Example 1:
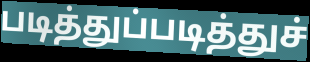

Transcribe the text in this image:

படித்துப்படித்துச்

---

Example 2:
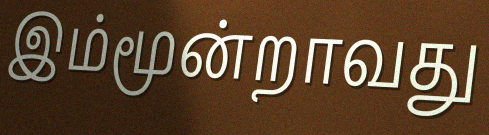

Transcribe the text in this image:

இம்மூன்றாவது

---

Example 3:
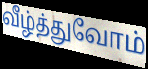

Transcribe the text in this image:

வீழ்த்துவோம்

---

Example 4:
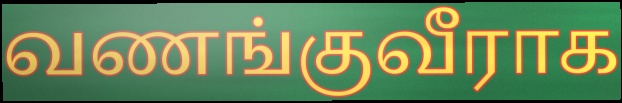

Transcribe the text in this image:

வணங்குவீராக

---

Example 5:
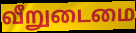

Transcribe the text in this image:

வீறுடைமை